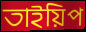
তাইয়িপ